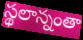
స్థలాన్నంతా